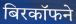
बिरकॉफने